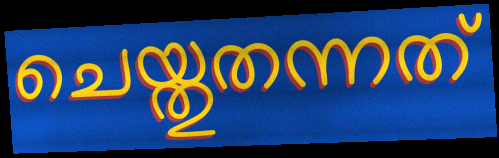
ചെയ്തുതന്നത്